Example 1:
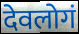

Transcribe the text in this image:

देवलोगं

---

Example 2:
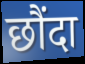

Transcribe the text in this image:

छौंदा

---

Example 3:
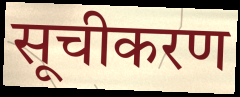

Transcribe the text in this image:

सूचीकरण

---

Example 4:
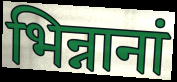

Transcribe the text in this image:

भिन्नानां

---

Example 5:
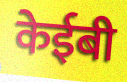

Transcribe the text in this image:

केईबी